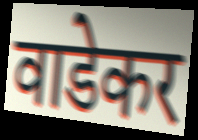
वाडेकर